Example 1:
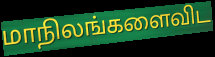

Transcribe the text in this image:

மாநிலங்களைவிட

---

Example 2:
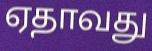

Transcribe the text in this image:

ஏதாவது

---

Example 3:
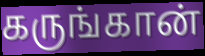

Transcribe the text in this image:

கருங்கான்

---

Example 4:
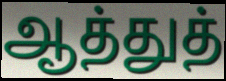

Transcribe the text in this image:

ஆத்துத்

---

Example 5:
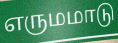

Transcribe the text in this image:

எருமமாடு